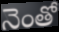
నెంతో